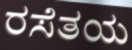
ರಸೆತಯ